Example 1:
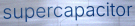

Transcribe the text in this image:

supercapacitor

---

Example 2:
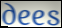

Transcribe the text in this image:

dees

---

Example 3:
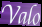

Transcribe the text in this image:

Valo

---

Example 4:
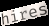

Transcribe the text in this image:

hires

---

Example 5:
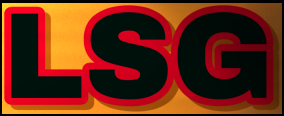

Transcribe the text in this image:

LSG